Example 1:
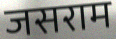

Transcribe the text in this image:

जसराम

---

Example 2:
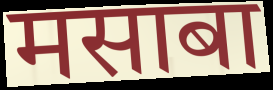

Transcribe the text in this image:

मसाबा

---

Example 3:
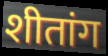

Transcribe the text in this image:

शीतांग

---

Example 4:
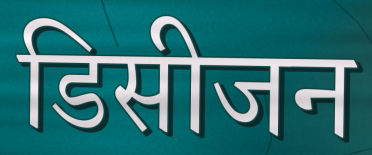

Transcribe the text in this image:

डिसीजन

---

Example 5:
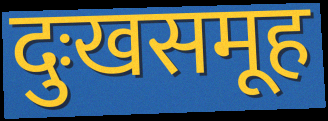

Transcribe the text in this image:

दुःखसमूह